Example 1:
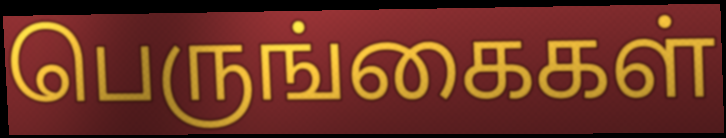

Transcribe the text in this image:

பெருங்கைகள்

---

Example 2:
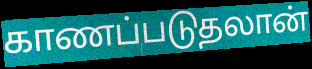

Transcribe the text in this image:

காணப்படுதலான்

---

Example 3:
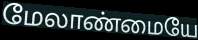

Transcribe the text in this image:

மேலாண்மையே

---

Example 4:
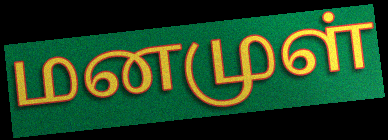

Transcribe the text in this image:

மனமுள்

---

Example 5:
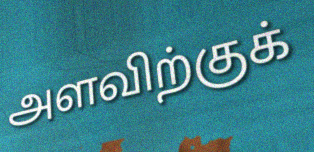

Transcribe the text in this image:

அளவிற்குக்